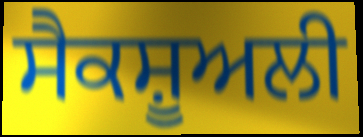
ਸੈਕਸ਼ੂਅਲੀ